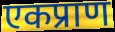
एकप्राण